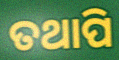
ତଥାପି